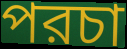
পরচা